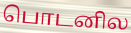
பொடனில